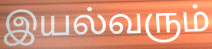
இயல்வரும்